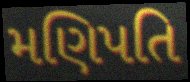
મણિપતિ